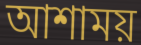
আশাময়